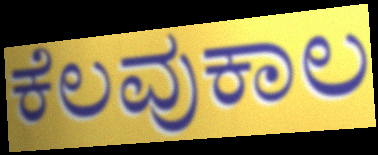
ಕೆಲವುಕಾಲ